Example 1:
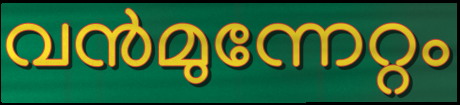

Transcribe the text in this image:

വൻമുന്നേറ്റം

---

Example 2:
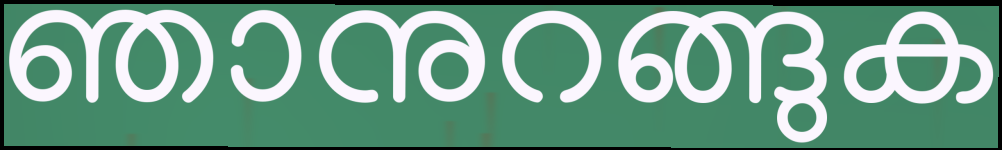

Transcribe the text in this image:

ഞാനുറങ്ങുക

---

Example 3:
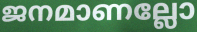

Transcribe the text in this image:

ജനമാണല്ലോ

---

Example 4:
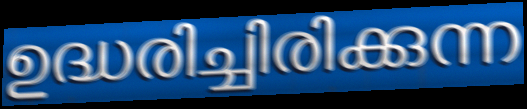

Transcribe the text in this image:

ഉദ്ധരിച്ചിരിക്കുന്ന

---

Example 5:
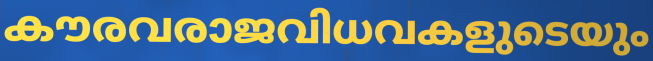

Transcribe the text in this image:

കൗരവരാജവിധവകളുടെയും